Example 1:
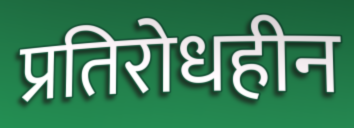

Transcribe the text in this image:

प्रतिरोधहीन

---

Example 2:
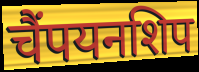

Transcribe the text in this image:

चैंपयनशिप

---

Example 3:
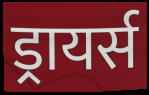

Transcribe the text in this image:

ड्रायर्स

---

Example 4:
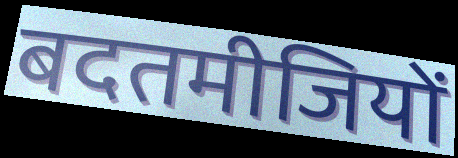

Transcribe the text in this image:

बदतमीजियों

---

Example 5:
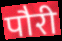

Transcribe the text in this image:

पौरी